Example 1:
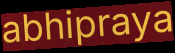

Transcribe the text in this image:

abhipraya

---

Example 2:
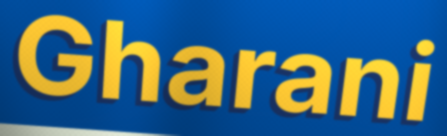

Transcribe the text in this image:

Gharani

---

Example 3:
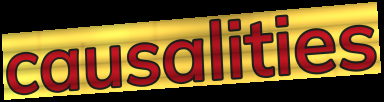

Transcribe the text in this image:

causalities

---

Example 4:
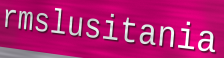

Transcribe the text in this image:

rmslusitania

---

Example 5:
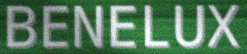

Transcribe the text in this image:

BENELUX